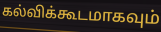
கல்விக்கூடமாகவும்